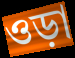
ওড়া